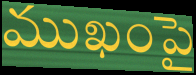
ముఖంపై